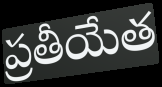
ప్రతీయేత